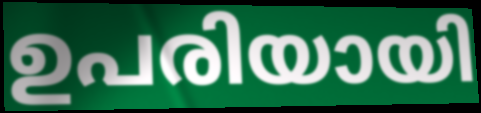
ഉപരിയായി